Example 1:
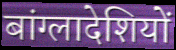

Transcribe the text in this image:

बांग्लादेशियों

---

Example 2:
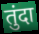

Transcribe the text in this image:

तुंदा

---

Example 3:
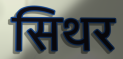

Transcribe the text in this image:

सिथर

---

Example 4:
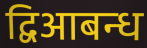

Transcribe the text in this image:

द्विआबन्ध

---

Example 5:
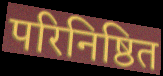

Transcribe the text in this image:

परिनिष्ठित